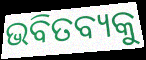
ଭବିତବ୍ୟକୁ